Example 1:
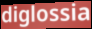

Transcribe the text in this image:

diglossia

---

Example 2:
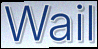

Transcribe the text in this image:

Wail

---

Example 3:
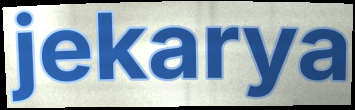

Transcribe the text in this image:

jekarya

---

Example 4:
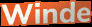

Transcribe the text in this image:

Winde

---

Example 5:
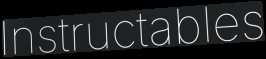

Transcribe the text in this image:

Instructables